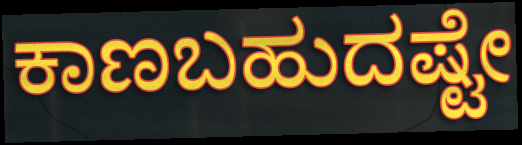
ಕಾಣಬಹುದಷ್ಟೇ